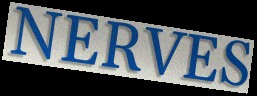
NERVES